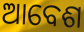
ଆବେଶ